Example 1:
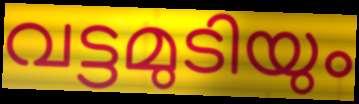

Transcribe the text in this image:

വട്ടമുടിയും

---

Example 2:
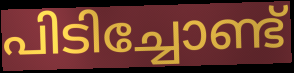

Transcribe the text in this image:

പിടിച്ചോണ്ട്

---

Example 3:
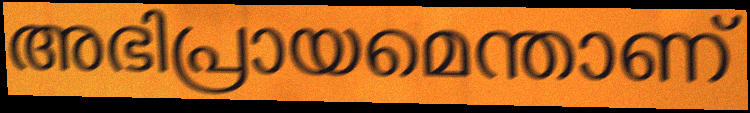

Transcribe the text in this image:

അഭിപ്രായമെന്താണ്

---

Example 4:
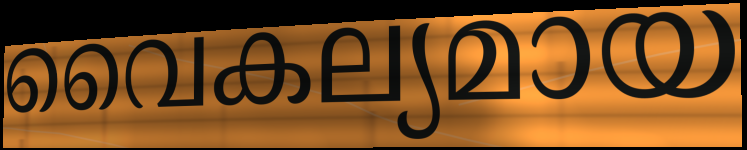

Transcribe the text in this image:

വൈകല്യമായ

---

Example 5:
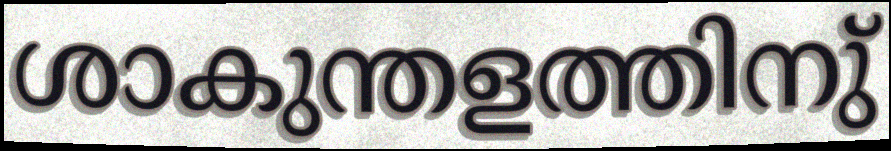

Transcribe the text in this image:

ശാകുന്തളത്തിനു്